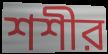
শশীর